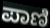
ಪಾಣಿ